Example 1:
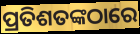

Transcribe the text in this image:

ପ୍ରତିଶତଙ୍କଠାରେ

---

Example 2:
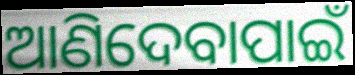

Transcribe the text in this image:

ଆଣିଦେବାପାଇଁ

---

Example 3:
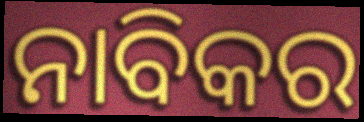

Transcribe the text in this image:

ନାବିକର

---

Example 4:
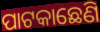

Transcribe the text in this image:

ପାଟକାଛେଣି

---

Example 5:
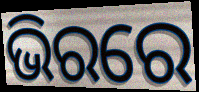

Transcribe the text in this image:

ଭିରରେ